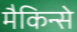
मैकिन्से